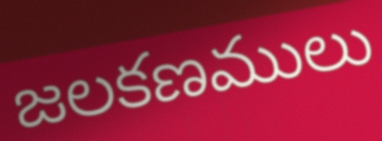
జలకణములు